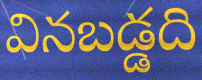
వినబడ్డది